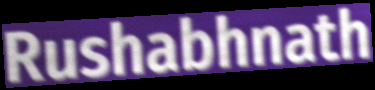
Rushabhnath